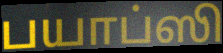
பயாப்ஸி